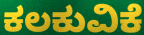
ಕಲಕುವಿಕೆ